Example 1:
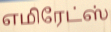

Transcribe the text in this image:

எமிரேட்ஸ்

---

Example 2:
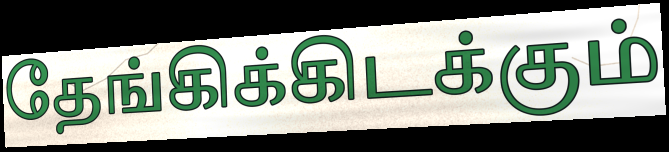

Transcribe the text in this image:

தேங்கிக்கிடக்கும்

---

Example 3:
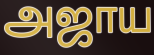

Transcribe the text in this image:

அஜாய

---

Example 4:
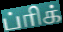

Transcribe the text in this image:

ப்ரிக்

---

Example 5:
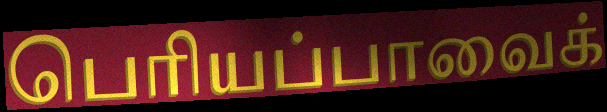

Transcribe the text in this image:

பெரியப்பாவைக்